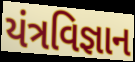
યંત્રવિજ્ઞાન